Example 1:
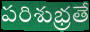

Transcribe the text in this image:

పరిశుభ్రతే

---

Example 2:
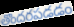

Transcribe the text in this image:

తొందరపడడం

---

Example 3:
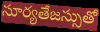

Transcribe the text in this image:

సూర్యతేజస్సుతో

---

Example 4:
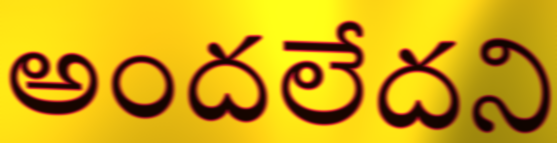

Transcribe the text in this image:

అందలేదని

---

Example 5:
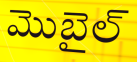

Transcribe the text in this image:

మొబైల్